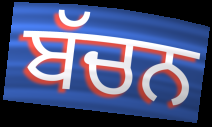
ਬੱਚਨ